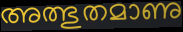
അത്ഭുതമാണു